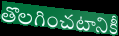
తొలగించటానికీ